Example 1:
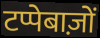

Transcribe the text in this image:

टप्पेबाज़ों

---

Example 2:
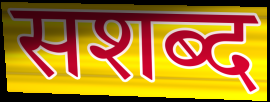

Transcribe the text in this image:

सशब्द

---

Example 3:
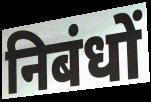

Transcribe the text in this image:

निबंधों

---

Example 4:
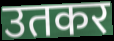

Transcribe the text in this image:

उतकर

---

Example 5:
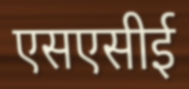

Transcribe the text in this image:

एसएसीई